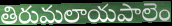
తిరుమలాయపాలెం